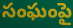
సంఘంపై